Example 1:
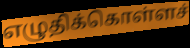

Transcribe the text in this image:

எழுதிக்கொள்ளச்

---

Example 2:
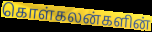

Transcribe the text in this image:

கொள்கலன்களின்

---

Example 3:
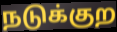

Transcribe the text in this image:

நடுக்குற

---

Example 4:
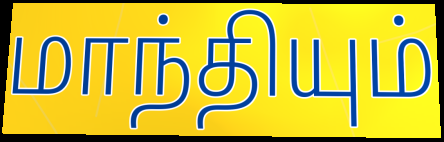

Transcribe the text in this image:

மாந்தியும்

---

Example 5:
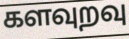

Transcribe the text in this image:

களவுறவு